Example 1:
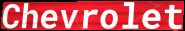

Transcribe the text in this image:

Chevrolet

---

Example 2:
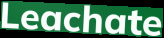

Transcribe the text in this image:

Leachate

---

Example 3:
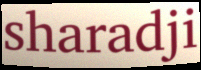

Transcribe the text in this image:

sharadji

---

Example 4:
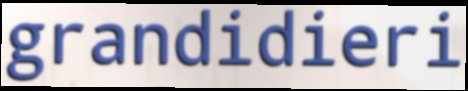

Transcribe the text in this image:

grandidieri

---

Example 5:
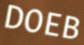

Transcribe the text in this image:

DOEB